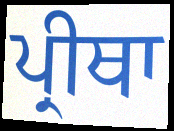
ਪ੍ਰੀਥਾ